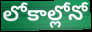
లోకాల్లోనో